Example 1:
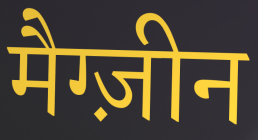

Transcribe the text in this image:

मैग्ज़ीन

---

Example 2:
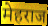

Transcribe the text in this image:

मेहराज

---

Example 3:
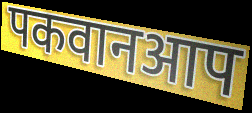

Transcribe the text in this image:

पकवानआप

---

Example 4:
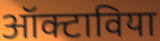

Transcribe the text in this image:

ऑक्टाविया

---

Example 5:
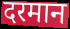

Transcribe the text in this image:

दरमान